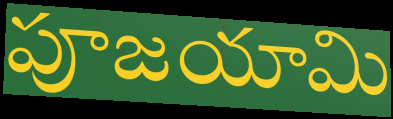
పూజయామి